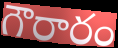
గౌరారం